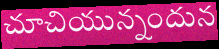
చూచియున్నందున